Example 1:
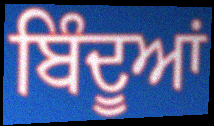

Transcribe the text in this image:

ਬਿੰਦੂਆਂ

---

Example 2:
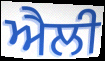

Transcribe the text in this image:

ਐਲੀ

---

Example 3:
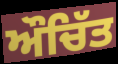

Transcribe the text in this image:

ਔਚਿੱਤ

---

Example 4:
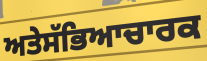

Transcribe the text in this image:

ਅਤੇਸੱਭਿਆਚਾਰਕ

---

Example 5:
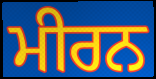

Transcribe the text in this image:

ਮੀਰਨ